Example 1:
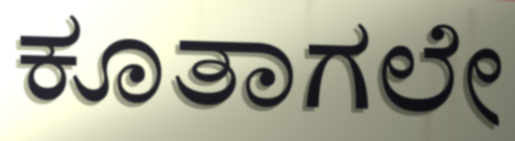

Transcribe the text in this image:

ಕೂತಾಗಲೇ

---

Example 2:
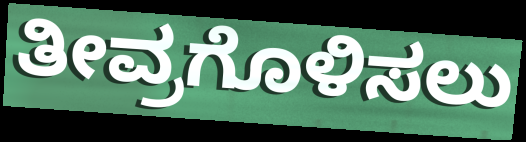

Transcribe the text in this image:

ತೀವ್ರಗೊಳಿಸಲು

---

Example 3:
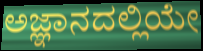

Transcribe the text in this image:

ಅಜ್ಞಾನದಲ್ಲಿಯೇ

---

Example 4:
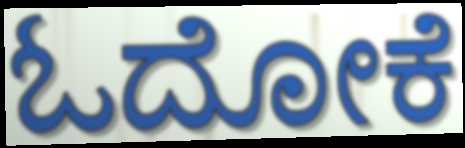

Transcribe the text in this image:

ಓದೋಕೆ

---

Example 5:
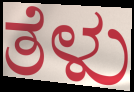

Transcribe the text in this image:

ತೆಳು